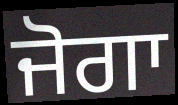
ਜੋਗਾ